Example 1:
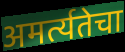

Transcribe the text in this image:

अमर्त्यतेचा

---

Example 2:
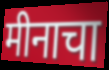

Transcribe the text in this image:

मीनाचा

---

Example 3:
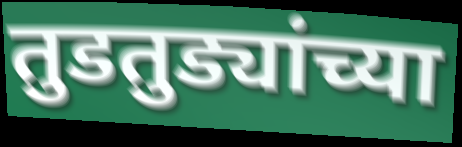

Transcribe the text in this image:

तुडतुड्यांच्या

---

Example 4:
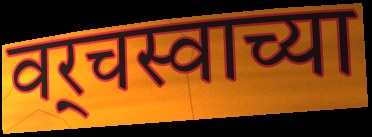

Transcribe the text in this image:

वर्चस्वाच्या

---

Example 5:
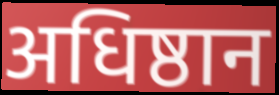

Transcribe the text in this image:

अधिष्ठान